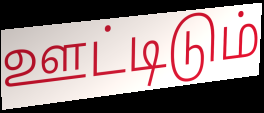
ஊட்டிடும்